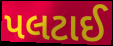
પલટાઈ